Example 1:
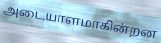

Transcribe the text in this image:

அடையாளமாகின்றன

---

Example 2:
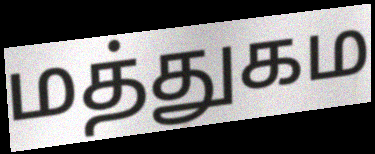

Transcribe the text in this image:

மத்துகம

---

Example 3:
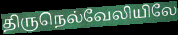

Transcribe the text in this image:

திருநெல்வேலியிலே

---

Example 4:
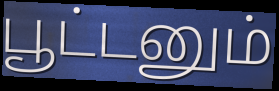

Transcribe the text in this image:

பூட்டனும்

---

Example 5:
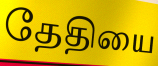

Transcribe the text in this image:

தேதியை